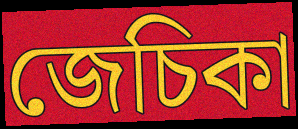
জেচিকা